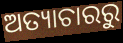
ଅତ୍ୟାଚାରରୁ